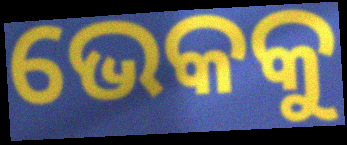
ଭେକକୁ